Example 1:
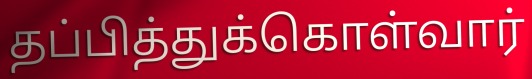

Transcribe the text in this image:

தப்பித்துக்கொள்வார்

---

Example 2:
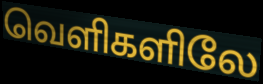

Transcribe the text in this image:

வெளிகளிலே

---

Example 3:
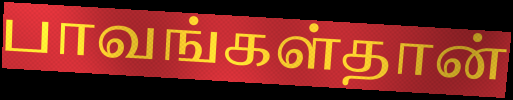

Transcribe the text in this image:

பாவங்கள்தான்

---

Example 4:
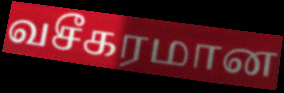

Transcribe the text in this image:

வசீகரமான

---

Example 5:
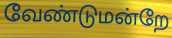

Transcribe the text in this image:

வேண்டுமன்றே